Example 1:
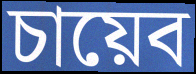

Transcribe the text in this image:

চায়েব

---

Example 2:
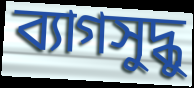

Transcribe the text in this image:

ব্যাগসুদ্ধু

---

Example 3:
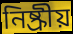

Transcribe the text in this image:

নিষ্ক্রীয়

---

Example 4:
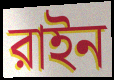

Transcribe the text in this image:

রাইন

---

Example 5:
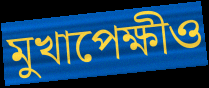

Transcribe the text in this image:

মুখাপেক্ষীও